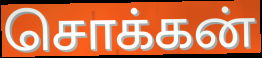
சொக்கன்